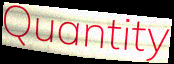
Quantity